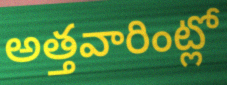
అత్తవారింట్లో